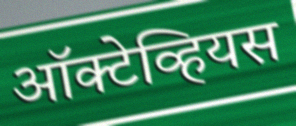
ऑक्टेव्हियस